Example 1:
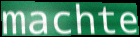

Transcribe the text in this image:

machte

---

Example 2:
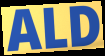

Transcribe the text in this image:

ALD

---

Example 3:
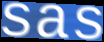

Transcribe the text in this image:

sas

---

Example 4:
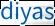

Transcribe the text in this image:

diyas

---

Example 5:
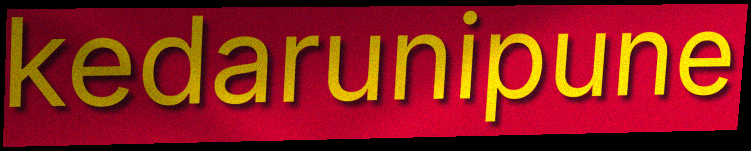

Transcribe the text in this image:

kedarunipune